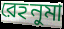
রেহনুমা